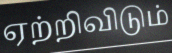
ஏற்றிவிடும்